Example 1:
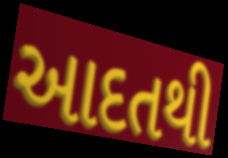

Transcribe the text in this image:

આદતથી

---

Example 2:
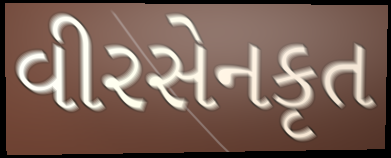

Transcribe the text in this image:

વીરસેનકૃત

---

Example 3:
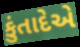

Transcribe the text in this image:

કુંતાદેએ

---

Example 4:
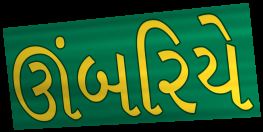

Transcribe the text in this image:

ઊંબરિયે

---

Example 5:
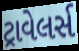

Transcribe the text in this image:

ટ્રાવેલર્સ